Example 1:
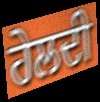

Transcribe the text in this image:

ਹੇਲਦੀ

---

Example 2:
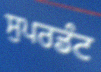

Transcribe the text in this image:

ਸੁਪਰਡੰਟ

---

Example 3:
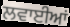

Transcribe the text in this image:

ਲਵਾਈਆਂ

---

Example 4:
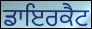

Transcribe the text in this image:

ਡਾਇਰਕੈਟ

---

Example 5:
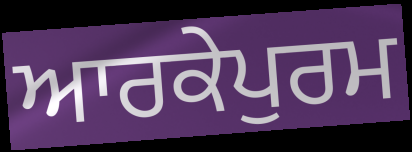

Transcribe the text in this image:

ਆਰਕੇਪੁਰਮ